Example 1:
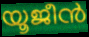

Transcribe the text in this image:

യൂജീൻ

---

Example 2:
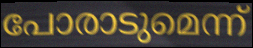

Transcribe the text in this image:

പോരാടുമെന്ന്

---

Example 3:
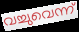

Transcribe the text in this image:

വച്ചുവെന്ന്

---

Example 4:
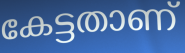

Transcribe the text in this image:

കേട്ടതാണ്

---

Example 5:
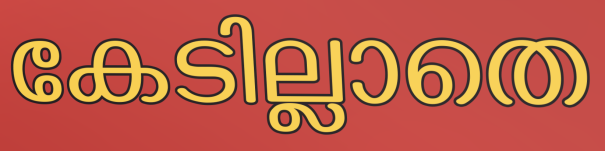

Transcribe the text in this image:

കേടില്ലാതെ